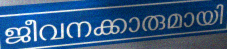
ജീവനക്കാരുമായി